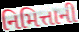
નિમિત્તાની